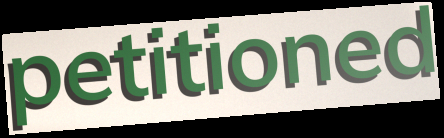
petitioned